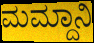
ಮಮ್ದಾನಿ